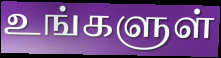
உங்களுள்